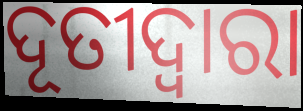
ଦୂତୀଦ୍ୱାରା